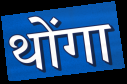
थोंगा